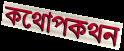
কথোপকথন